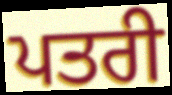
ਪਤਰੀ